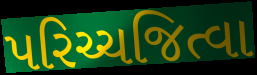
પરિચ્ચજિત્વા